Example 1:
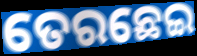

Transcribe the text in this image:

ତେରଛେଇ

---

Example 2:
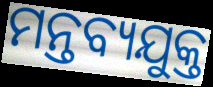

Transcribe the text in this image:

ମନ୍ତବ୍ୟଯୁକ୍ତ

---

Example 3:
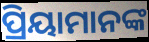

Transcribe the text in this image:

ପ୍ରିୟାମାନଙ୍କ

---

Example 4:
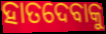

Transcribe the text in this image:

ହାତଦେବାକୁ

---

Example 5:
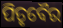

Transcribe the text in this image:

ପିତୃବୈର